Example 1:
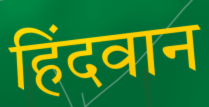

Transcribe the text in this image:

हिंदवान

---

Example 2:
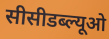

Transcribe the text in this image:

सीसीडब्ल्यूओ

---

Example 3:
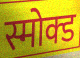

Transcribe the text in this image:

स्मोक्ड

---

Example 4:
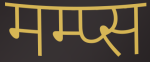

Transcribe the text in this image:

मम्प्स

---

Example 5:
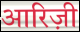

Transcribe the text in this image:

आरिज़ी